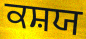
ਕਸ਼ਯ